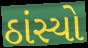
ઠાંસ્યો